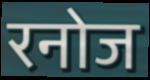
रनोज